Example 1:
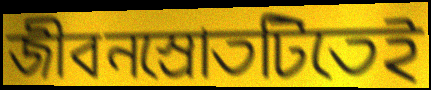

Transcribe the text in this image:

জীবনস্রোতটিতেই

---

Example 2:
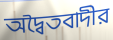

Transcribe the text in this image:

অদ্বৈতবাদীর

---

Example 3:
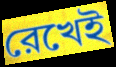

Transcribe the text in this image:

রেখেই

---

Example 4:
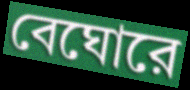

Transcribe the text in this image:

বেঘোরে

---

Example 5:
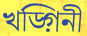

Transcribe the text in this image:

খড়্গিনী